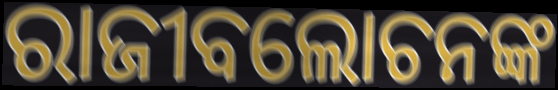
ରାଜୀବଲୋଚନଙ୍କ